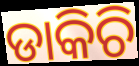
ଡାକିଚି